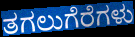
ತಗಲುಗೆರೆಗಳು